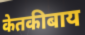
केतकीबाय